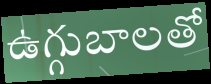
ఉగ్గుబాలతో